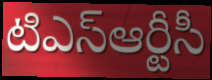
టిఎస్ఆర్టీసీ